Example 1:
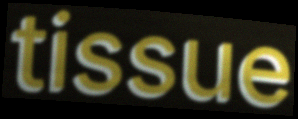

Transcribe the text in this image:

tissue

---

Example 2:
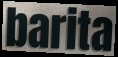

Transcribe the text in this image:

barita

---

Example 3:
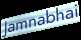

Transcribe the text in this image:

Jamnabhai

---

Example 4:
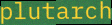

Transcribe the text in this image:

plutarch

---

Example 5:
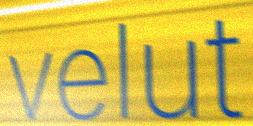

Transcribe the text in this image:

velut